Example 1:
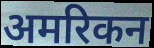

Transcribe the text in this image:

अमरिकन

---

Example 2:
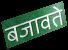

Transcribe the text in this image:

बजावते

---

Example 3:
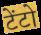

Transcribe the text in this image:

टेंटो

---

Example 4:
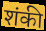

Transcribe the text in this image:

शंकी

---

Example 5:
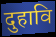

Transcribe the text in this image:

दुहावि